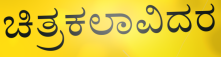
ಚಿತ್ರಕಲಾವಿದರ